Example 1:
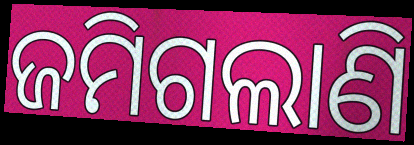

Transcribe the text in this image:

ଜମିଗଲାଣି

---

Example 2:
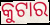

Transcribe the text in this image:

କୁଟାର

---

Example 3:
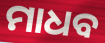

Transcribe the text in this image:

ମାଧବ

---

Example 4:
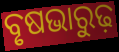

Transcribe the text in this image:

ବୃଷଭାରୁଢ଼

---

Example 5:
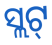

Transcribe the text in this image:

ସ୍ଲଟ୍